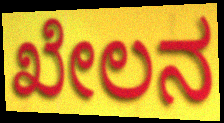
ಖೇಲನ